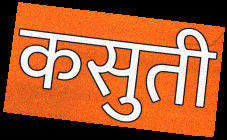
कसुती